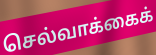
செல்வாக்கைக்